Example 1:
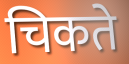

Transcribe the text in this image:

चिकते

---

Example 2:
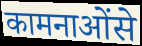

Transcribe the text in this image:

कामनाओंसे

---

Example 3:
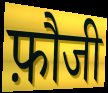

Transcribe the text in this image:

फ़ौजी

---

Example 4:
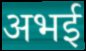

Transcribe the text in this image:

अभई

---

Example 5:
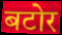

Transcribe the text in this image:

बटोर